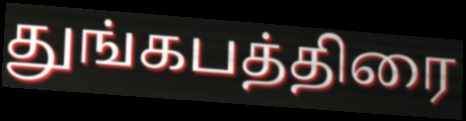
துங்கபத்திரை